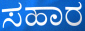
ಸಹಾರ